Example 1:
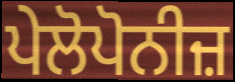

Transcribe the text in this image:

ਪੇਲੋਪੋਨੀਜ਼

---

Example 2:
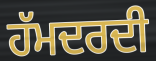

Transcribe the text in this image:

ਹੱਮਦਰਦੀ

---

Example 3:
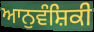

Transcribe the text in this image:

ਆਨੁਵੰਸ਼ਿਕੀ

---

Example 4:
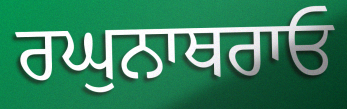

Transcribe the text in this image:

ਰਘੁਨਾਥਰਾਓ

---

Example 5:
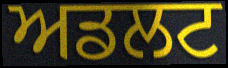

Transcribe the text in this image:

ਅਡਲਟ